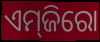
ଏମ୍‌ଜିରୋ